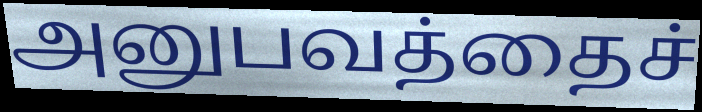
அனுபவத்தைச்